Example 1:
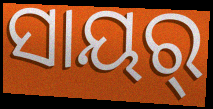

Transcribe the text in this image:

ସାୟର୍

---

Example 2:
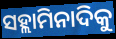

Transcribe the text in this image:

ସହ୍ଲାମିନାଦିକୁ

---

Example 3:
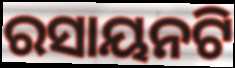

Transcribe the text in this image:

ରସାୟନଟି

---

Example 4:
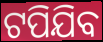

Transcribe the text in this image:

ଟପିଯିବ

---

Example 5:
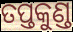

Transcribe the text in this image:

ତପ୍ତକୁଣ୍ଡ